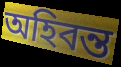
অহিবন্ত